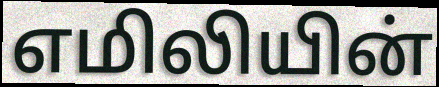
எமிலியின்